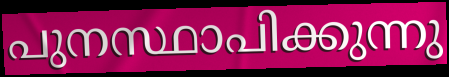
പുനസ്ഥാപിക്കുന്നു